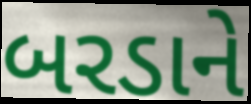
બરડાને